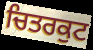
ਚਿਤਰਕੁਟ